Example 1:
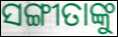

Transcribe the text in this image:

ସଙ୍ଗୀତାଙ୍କୁ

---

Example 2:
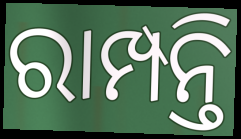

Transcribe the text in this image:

ରାମ୍ପନ୍ତି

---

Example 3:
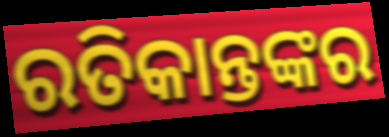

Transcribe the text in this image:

ରତିକାନ୍ତଙ୍କର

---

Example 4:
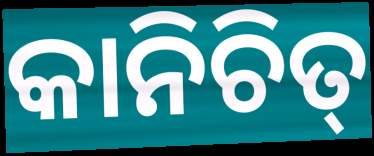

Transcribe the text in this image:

କାନିଚିତ୍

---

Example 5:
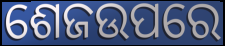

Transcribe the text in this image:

ଶେଜଉପରେ